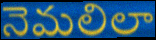
నెమలిలా